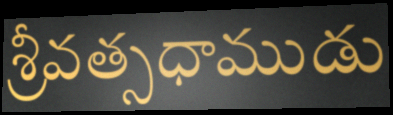
శ్రీవత్సధాముడు